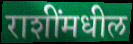
राशींमधील